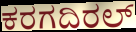
ಕರಗದಿರಲ್